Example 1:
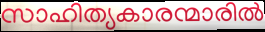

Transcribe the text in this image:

സാഹിത്യകാരന്മാരിൽ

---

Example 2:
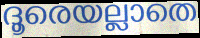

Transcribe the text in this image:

ദൂരെയല്ലാതെ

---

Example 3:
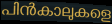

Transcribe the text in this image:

പിൻകാലുകളെ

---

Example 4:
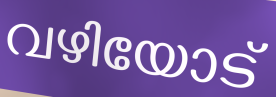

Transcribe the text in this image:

വഴിയോട്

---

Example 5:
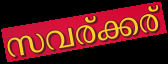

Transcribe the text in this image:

സവര്ക്കര്